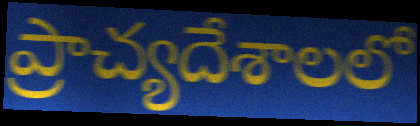
ప్రాచ్యదేశాలలో